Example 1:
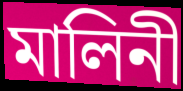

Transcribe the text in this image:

মালিনী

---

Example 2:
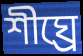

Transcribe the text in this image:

শীঘ্ৰে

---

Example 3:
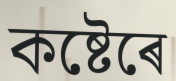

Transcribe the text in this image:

কষ্টেৰে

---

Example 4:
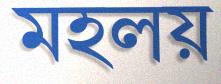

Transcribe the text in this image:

মহলয়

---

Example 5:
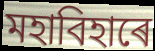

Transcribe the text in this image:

মহাবিহাৰে